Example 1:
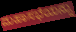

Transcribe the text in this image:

ಮಹಾಸಭೆಯನ್ನು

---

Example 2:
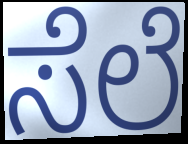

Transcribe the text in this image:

ಸೆಲೆ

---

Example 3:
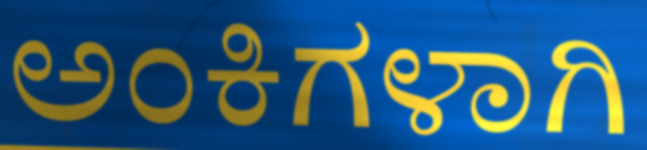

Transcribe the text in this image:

ಅಂಕಿಗಳಾಗಿ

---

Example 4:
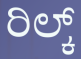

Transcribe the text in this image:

ರಿಲ್ಕ್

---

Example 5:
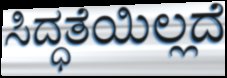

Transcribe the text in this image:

ಸಿದ್ಧತೆಯಿಲ್ಲದೆ